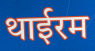
थाईरम